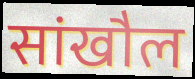
सांखौल